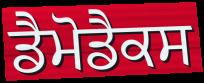
ਡੈਮੋਡੈਕਸ